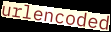
urlencoded